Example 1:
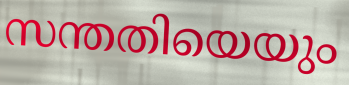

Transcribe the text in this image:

സന്തതിയെയും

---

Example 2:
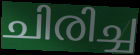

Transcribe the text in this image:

ചിരിച്ച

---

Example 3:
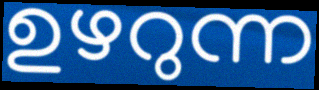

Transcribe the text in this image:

ഉഴറുന്ന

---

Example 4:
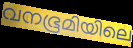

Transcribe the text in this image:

വനഭൂമിയിലെ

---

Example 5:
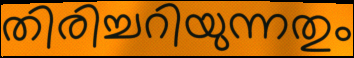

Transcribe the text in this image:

തിരിച്ചറിയുന്നതും